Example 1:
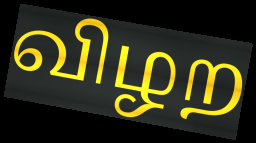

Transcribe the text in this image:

விழற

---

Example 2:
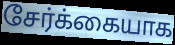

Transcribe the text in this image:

சேர்க்கையாக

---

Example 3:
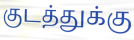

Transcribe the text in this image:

குடத்துக்கு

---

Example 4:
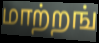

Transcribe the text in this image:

மாற்றங்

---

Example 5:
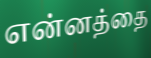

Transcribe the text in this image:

என்னத்தை